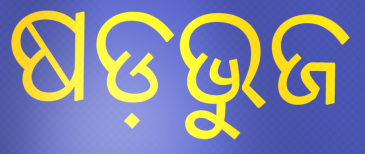
ଷଡ଼ଭୁଜ